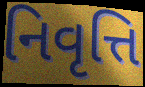
નિવૃત્તિ